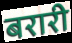
बरारी